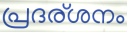
പ്രദര്ശനം